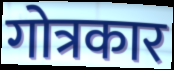
गोत्रकार